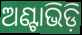
ଅଣ୍ଟାଭିଡ଼ି